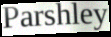
Parshley